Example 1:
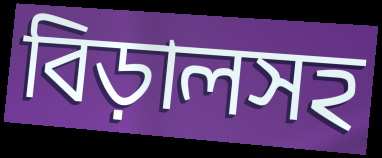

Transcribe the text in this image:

বিড়ালসহ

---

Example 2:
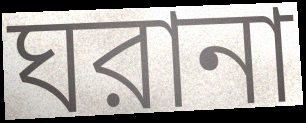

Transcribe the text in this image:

ঘরানা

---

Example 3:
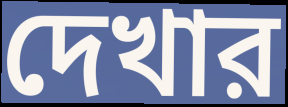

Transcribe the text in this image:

দেখার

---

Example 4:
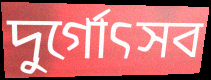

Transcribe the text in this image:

দুর্গোৎসব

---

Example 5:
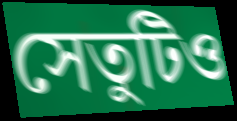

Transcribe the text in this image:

সেতুটিও